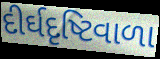
દીર્ઘદૃષ્ટિવાળા